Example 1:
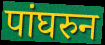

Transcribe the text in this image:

पांघरुन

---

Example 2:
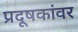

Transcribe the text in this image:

प्रदूषकांवर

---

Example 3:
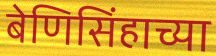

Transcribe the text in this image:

बेणिसिंहाच्या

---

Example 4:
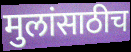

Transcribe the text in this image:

मुलांसाठीच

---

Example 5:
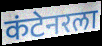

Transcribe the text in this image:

कंटेनरला